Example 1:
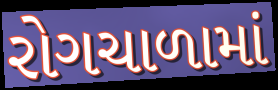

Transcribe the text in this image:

રોગચાળામાં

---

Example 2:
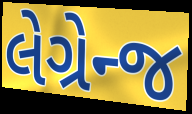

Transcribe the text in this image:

લેગ્રેન્જ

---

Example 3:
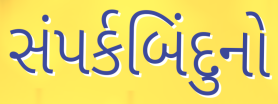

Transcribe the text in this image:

સંપર્કબિંદુનો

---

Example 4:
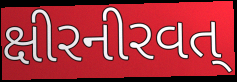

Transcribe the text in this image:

ક્ષીરનીરવત્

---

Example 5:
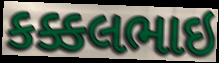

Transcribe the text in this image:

કક્કલભાઇ